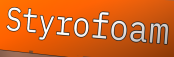
Styrofoam